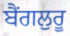
ਬੈਂਗਲੁਰੂ